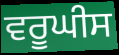
ਵਰੂਘੀਸ